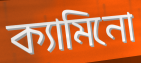
ক্যামিনো